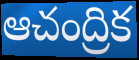
ఆచంద్రిక